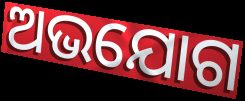
ଅଭଯୋଗ